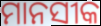
ମାନସୀକ